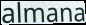
almana